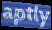
aptly